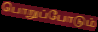
பொறுப்போடும்